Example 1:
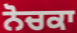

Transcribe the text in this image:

ਨੋਚਕਾ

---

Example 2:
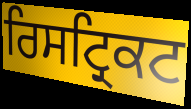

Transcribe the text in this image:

ਰਿਸਟ੍ਰਿਕਟ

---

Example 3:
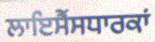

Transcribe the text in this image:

ਲਾਇਸੈਂਸਧਾਰਕਾਂ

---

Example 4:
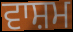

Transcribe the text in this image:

ਵਾਸ਼ਮ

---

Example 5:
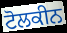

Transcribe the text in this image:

ਟੋਲਕੀਨ